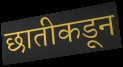
छातीकडून